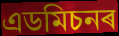
এডমিচনৰ